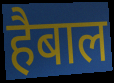
हैबाल